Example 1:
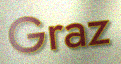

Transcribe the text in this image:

Graz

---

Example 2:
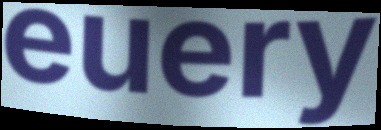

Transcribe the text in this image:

euery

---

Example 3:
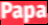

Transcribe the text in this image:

Papa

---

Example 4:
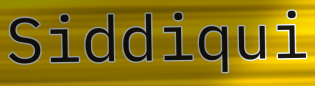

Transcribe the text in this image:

Siddiqui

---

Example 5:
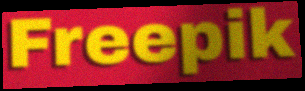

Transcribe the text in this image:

Freepik